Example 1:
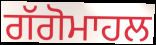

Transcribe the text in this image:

ਗੱਗੋਮਾਹਲ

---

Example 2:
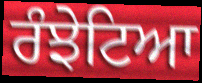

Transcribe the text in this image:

ਰੰਝੇਟਿਆ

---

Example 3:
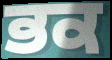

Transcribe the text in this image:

ਭਕ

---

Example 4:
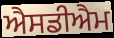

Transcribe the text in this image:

ਐਸਡੀਐਮ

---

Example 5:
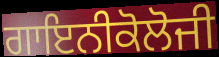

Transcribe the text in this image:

ਗਾਇਨੀਕੋਲੋਜੀ